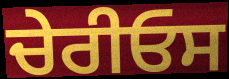
ਚੇਰੀਓਸ